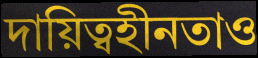
দায়িত্বহীনতাও